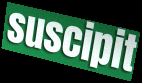
suscipit